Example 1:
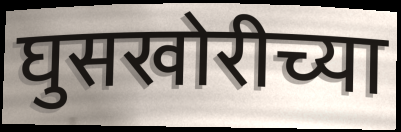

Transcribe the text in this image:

घुसखोरीच्या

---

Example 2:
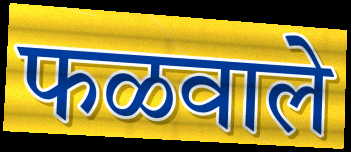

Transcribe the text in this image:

फळवाले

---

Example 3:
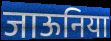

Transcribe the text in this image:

जाऊनिया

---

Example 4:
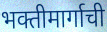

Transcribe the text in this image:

भक्तीमार्गाची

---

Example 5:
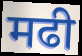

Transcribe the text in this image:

मढी